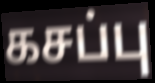
கசப்பு